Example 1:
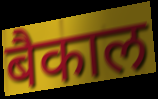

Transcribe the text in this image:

बैकाल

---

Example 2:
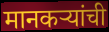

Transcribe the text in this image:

मानकऱ्यांची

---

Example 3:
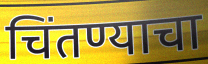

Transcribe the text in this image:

चिंतण्याचा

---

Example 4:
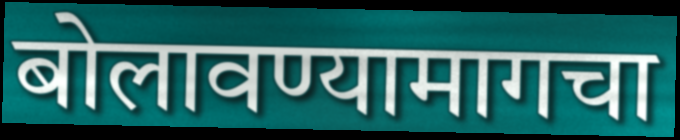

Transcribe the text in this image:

बोलावण्यामागचा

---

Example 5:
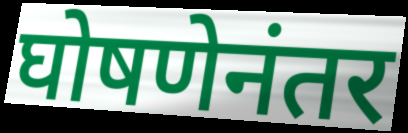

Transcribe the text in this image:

घोषणेनंतर